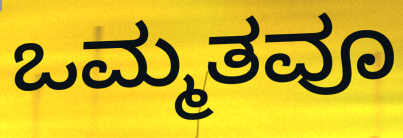
ಒಮ್ಮತವೂ